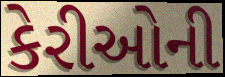
કેરીઓની